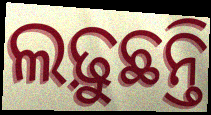
ଲଢ଼ୁଛନ୍ତି